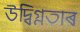
উদ্বিগ্নতাৰ